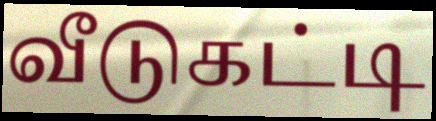
வீடுகட்டி